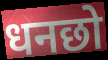
धनछो